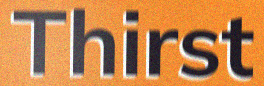
Thirst